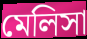
মেলিসা